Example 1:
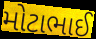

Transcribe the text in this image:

મોટાભાઈ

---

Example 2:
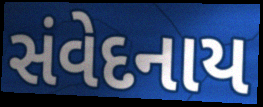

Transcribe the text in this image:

સંવેદનાય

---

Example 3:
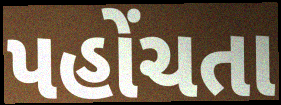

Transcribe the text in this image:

પહોંચતા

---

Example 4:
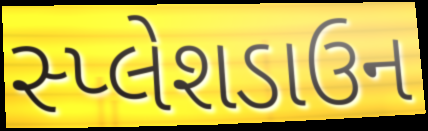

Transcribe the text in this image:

સ્પ્લેશડાઉન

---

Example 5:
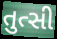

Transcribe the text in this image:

તુત્સી